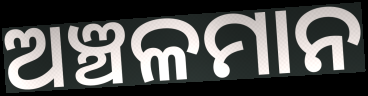
ଅଞ୍ଚଳମାନ